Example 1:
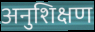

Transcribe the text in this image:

अनुशिक्षण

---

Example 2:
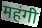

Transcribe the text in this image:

महंगी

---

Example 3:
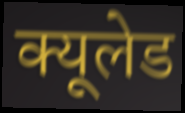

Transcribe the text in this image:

क्यूलेड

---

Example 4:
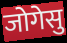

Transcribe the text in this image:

जोगेसु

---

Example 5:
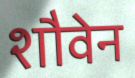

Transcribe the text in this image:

शौवेन